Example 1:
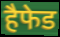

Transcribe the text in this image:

हैफेड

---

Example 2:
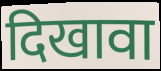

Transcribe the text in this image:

दिखावा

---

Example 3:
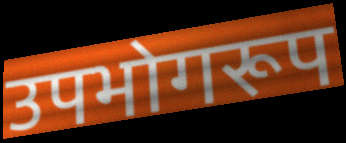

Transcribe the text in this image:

उपभोगरूप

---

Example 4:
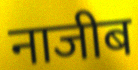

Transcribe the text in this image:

नाजीब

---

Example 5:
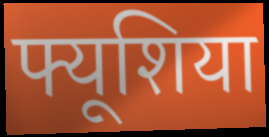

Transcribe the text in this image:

फ्यूशिया